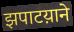
झपाटय़ाने